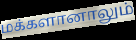
மக்களானாலும்